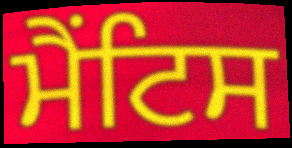
ਮੈਂਟਿਸ